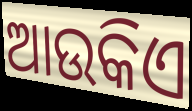
ଆଉକିଏ